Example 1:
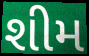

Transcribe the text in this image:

શીમ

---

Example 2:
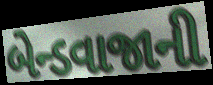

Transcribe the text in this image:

બેન્ડવાજાની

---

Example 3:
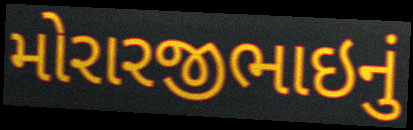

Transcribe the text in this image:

મોરારજીભાઇનું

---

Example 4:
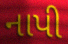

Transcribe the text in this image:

નાપી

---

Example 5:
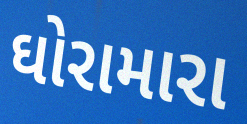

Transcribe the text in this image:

ઘોરામારા